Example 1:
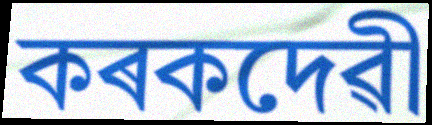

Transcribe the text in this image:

কৰকদেৱী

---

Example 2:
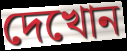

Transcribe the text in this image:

দেখোন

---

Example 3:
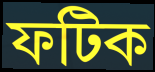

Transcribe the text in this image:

ফটিক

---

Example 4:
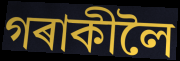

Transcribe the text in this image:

গৰাকীলৈ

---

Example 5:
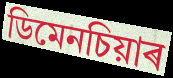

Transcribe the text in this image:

ডিমেনচিয়াৰ